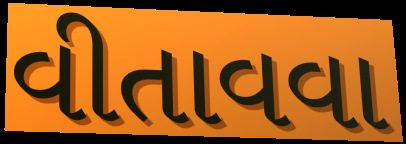
વીતાવવા